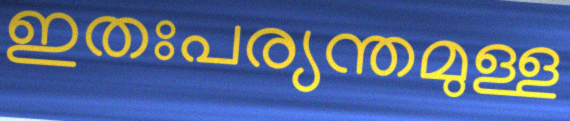
ഇതഃപര്യന്തമുള്ള